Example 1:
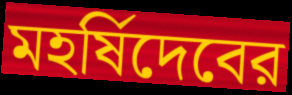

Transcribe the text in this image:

মহর্ষিদেবের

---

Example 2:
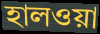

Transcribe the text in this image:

হালওয়া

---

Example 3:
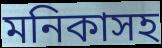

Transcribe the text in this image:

মনিকাসহ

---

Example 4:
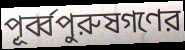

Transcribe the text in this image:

পূর্ব্বপুরুষগণের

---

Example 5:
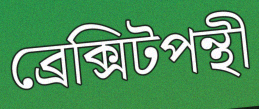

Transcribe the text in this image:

ব্রেক্সিটপন্থী